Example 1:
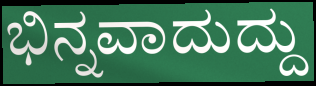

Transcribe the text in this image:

ಭಿನ್ನವಾದುದ್ದು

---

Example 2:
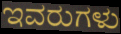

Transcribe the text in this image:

ಇವರುಗಳು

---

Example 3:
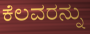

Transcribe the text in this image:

ಕೆಲವರನ್ನು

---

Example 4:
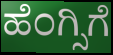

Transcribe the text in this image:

ಹೆಂಗ್ಸಿಗೆ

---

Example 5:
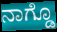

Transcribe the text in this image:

ನಾಗ್ಡೊ